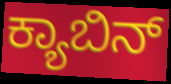
ಕ್ಯಾಬಿನ್